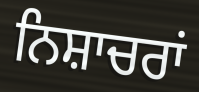
ਨਿਸ਼ਾਚਰਾਂ